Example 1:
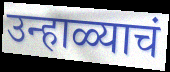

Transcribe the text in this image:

उन्हाळ्याचं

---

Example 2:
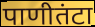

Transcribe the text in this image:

पाणीतंटा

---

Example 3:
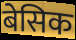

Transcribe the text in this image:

बेसिक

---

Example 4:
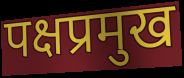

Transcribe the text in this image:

पक्षप्रमुख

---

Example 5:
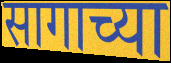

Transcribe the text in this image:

सागाच्या